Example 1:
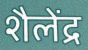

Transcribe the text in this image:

शैलेंद्र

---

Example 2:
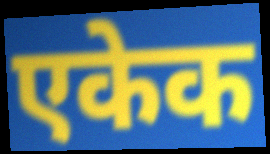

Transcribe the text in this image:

एकेक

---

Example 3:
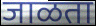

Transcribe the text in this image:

जाळता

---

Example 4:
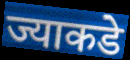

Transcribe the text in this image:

ज्याकडे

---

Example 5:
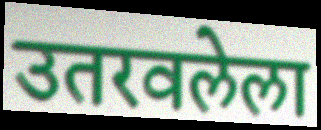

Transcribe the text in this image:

उतरवलेला